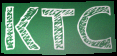
KTC